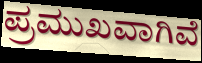
ಪ್ರಮುಖವಾಗಿವೆ